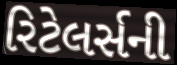
રિટેલર્સની